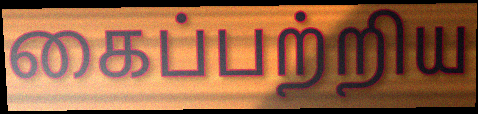
கைப்பற்றிய